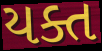
યક્ત